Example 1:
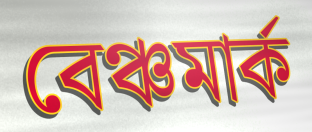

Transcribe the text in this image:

বেঞ্চমার্ক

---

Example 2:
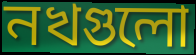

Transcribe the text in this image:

নখগুলো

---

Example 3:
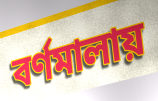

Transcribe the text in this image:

বর্ণমালায়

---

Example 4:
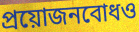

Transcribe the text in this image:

প্রয়োজনবোধও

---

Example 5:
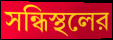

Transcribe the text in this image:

সন্ধিস্থলের